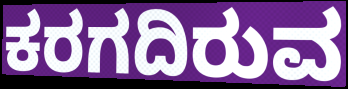
ಕರಗದಿರುವ